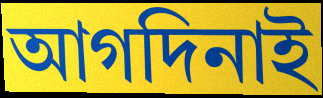
আগদিনাই